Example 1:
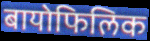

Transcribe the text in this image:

बायोफिलिक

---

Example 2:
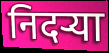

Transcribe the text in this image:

निदऱ्या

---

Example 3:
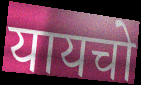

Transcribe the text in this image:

यायचो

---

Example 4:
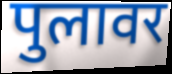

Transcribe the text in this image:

पुलावर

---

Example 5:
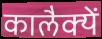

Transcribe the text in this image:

कालैक्यें